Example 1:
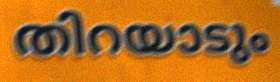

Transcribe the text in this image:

തിറയാടും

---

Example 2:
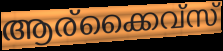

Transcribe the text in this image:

ആര്ക്കൈവ്സ്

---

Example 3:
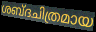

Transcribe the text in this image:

ശബ്ദചിത്രമായ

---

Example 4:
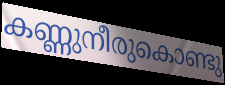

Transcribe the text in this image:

കണ്ണുനീരുകൊണ്ടു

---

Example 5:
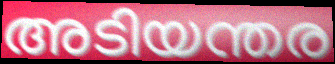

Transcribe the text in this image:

അടിയന്തര